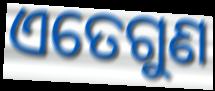
ଏତେଗୁଣ